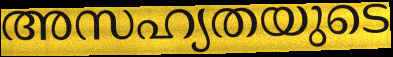
അസഹ്യതയുടെ